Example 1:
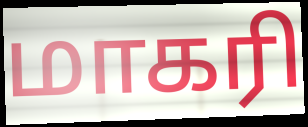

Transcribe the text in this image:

மாகரி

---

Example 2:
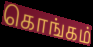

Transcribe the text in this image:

கொங்கம்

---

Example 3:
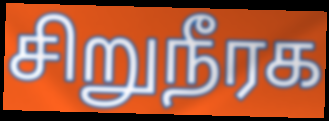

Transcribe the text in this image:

சிறுநீரக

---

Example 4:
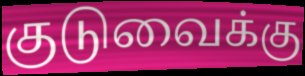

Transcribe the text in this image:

குடுவைக்கு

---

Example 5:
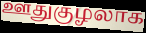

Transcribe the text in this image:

ஊதுகுழலாக